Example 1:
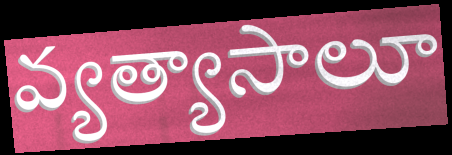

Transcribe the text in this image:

వ్యత్యాసాలూ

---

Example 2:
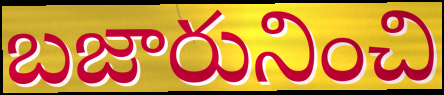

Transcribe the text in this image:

బజారునించి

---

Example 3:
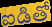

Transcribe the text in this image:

ఐడితో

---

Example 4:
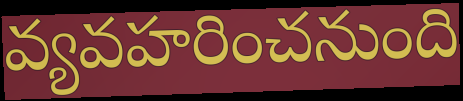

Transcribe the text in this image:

వ్యవహరించనుంది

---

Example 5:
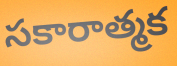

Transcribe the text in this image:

సకారాత్మక